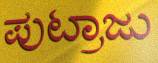
ಪುಟ್ರಾಜು